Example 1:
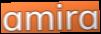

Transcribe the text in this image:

amira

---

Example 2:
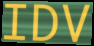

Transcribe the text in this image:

IDV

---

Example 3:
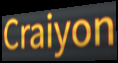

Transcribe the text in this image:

Craiyon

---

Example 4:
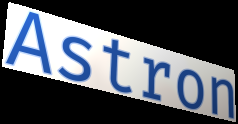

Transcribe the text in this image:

Astron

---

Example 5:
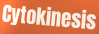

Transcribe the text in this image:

Cytokinesis